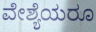
ವೇಶ್ಯೆಯರೂ